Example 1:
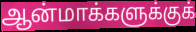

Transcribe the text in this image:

ஆன்மாக்களுக்குக்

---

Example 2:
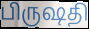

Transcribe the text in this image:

பிருஷதி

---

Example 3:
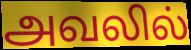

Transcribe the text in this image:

அவலில்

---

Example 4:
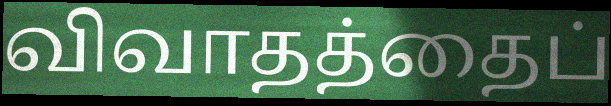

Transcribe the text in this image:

விவாதத்தைப்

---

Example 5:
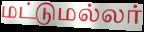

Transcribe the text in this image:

மட்டுமல்லர்